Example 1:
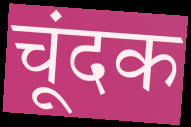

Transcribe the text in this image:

चूंदक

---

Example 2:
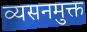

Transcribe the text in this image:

व्यसनमुक्त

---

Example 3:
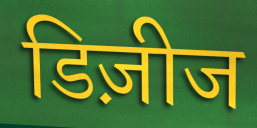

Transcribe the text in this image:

डिज़ीज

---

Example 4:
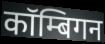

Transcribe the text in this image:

कॉम्बिगन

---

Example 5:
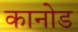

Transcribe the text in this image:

कानोड